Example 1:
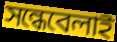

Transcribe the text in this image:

সন্ধেবেলাই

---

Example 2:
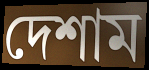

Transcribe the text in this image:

দেশাম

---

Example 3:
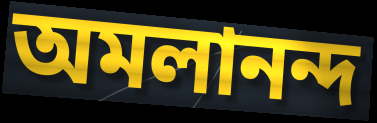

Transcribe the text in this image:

অমলানন্দ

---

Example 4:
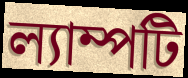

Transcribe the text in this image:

ল্যাম্পটি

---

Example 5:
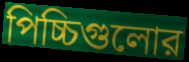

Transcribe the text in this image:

পিচ্চিগুলোর